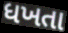
ધખતા